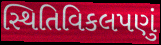
સ્થિતિવિકલપણું